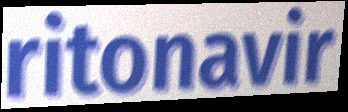
ritonavir